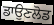
ਡਾਉਣਲੋਡ